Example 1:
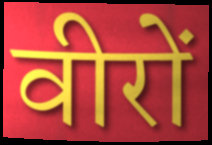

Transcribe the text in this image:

वीरों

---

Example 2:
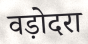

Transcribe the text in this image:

वड़ोदरा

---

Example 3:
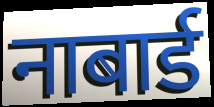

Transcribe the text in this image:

नाबार्ड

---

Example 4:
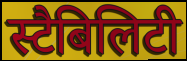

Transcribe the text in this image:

स्टैबिलिटी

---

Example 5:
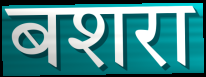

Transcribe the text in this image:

बशरा